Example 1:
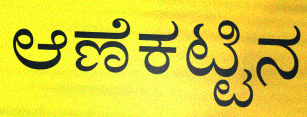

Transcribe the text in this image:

ಆಣೆಕಟ್ಟಿನ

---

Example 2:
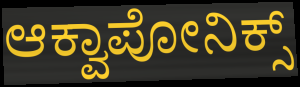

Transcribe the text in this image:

ಆಕ್ವಾಪೋನಿಕ್ಸ್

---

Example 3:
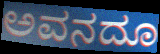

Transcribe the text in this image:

ಅವನದೂ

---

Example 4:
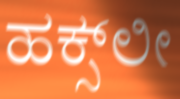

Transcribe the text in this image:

ಹಕ್ಸ್‌ಲೀ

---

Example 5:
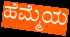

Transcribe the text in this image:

ಹೆಮ್ಮೆಯ